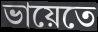
ভায়েতে